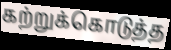
கற்றுக்கொடுத்த